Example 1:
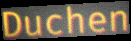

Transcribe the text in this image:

Duchen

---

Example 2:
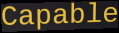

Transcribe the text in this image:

Capable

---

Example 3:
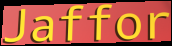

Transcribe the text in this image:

Jaffor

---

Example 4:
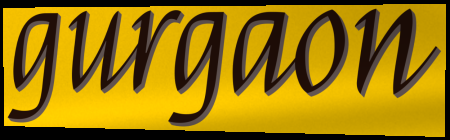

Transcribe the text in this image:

gurgaon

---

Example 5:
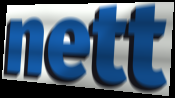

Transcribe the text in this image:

nett